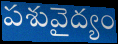
పశువైద్యం